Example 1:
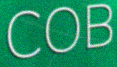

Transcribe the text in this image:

COB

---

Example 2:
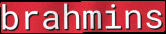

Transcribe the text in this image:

brahmins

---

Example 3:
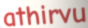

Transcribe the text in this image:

athirvu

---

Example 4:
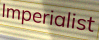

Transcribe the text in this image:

Imperialist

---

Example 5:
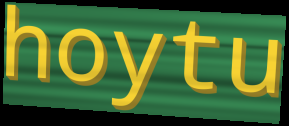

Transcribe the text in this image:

hoytu